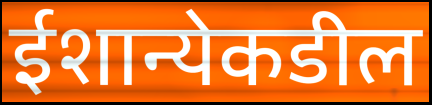
ईशान्येकडील